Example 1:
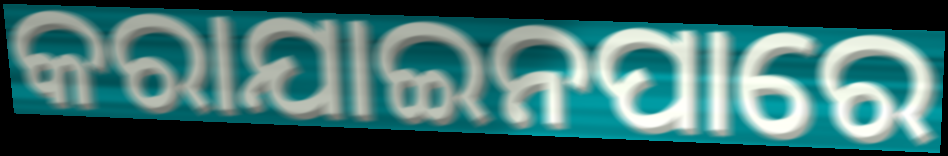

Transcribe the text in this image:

କରାଯାଇନପାରେ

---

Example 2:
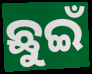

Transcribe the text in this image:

ଛୁଇଁ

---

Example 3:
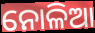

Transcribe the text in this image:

ନୋଳିଆ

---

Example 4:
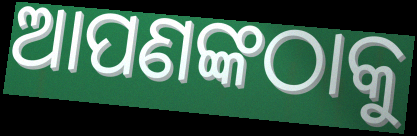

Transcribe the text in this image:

ଆପଣଙ୍କଠାକୁ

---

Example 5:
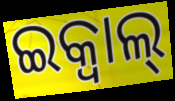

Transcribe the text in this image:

ଇକ୍ୱାଲ୍